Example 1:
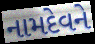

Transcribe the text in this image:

નામદેવને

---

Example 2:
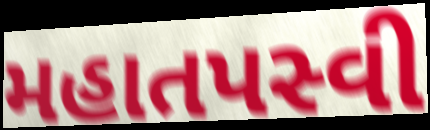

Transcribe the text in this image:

મહાતપસ્વી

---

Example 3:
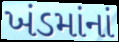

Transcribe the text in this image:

ખંડમાંનાં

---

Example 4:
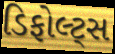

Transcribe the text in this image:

ડિફોલ્ટ્સ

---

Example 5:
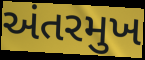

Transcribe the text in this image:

અંતરમુખ